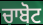
ਚਾਬੋਟ